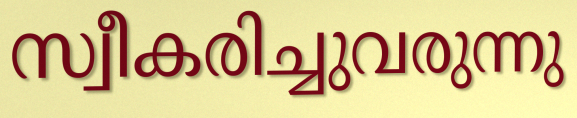
സ്വീകരിച്ചുവരുന്നു